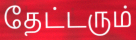
தேட்டரும்